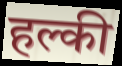
हल्की